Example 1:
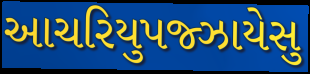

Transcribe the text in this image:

આચરિયુપજ્ઝાયેસુ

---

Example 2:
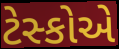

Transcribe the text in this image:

ટેસ્કોએ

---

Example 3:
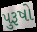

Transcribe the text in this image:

પુરૂષો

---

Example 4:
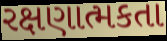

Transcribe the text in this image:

રક્ષણાત્મકતા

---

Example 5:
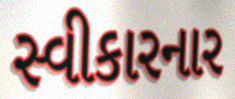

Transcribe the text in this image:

સ્વીકારનાર